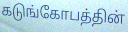
கடுங்கோபத்தின்